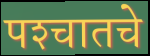
पश्चातचे